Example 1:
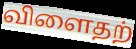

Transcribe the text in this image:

விளைதற்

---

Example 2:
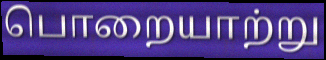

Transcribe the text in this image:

பொறையாற்று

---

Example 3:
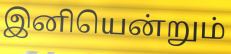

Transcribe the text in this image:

இனியென்றும்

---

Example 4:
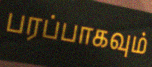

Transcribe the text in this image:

பரப்பாகவும்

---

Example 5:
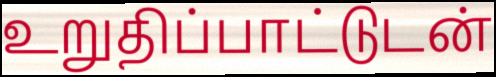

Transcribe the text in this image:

உறுதிப்பாட்டுடன்